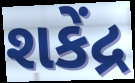
શકેંદ્ર